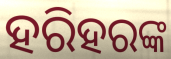
ହରିହରଙ୍କ